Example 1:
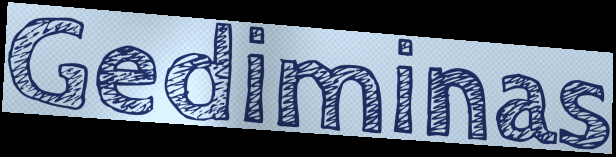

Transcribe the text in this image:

Gediminas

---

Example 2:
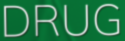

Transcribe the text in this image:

DRUG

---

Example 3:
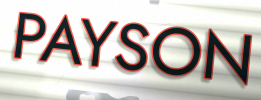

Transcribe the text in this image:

PAYSON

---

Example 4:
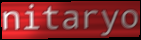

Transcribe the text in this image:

nitaryo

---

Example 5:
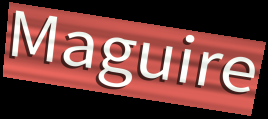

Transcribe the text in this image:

Maguire